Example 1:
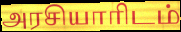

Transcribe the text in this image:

அரசியாரிடம்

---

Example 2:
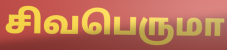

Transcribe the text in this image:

சிவபெருமா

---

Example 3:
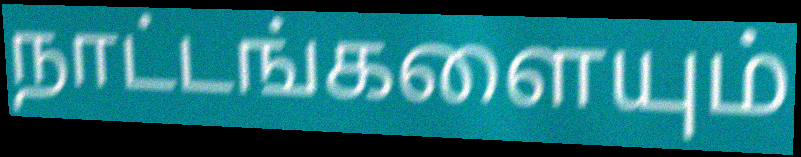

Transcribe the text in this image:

நாட்டங்களையும்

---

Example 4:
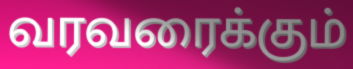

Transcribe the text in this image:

வரவரைக்கும்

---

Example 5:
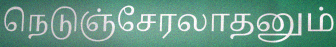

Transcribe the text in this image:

நெடுஞ்சேரலாதனும்